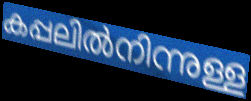
കപ്പലിൽനിന്നുള്ള